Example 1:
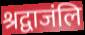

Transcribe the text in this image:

श्रद्वाजंलि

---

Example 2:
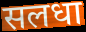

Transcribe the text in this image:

सलधा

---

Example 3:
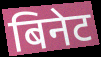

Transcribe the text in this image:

बिनेट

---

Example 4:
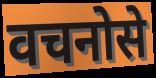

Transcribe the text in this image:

वचनोसे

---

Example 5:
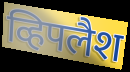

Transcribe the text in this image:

व्हिपलैश